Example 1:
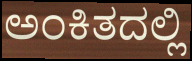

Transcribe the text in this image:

ಅಂಕಿತದಲ್ಲಿ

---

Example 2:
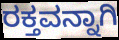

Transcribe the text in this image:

ರಕ್ತವನ್ನಾಗಿ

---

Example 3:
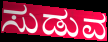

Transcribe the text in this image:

ಸುಡುವ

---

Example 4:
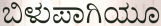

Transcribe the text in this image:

ಬಿಳುಪಾಗಿಯೂ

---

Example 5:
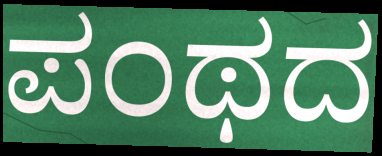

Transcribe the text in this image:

ಪಂಥದ